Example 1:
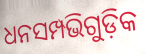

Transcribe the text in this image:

ଧନସମ୍ପଭିଗୁଡ଼ିକ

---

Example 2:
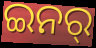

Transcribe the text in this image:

ଇନର୍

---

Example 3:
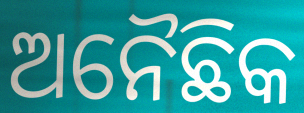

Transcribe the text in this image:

ଅନୈଛିକ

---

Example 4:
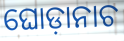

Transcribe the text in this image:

ଘୋଡ଼ାନାଚ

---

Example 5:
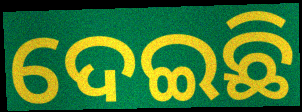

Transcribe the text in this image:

ଦେଇଛି